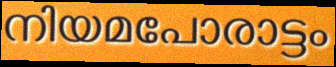
നിയമപോരാട്ടം